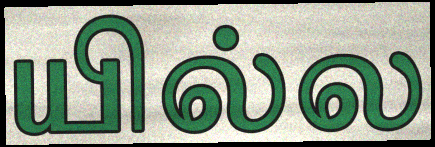
யில்ல